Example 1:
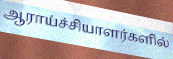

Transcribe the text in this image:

ஆராய்ச்சியாளர்களில்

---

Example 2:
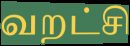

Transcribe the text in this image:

வறட்சி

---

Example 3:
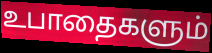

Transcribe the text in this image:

உபாதைகளும்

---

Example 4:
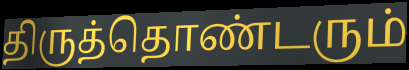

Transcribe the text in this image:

திருத்தொண்டரும்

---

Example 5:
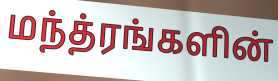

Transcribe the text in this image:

மந்த்ரங்களின்